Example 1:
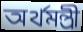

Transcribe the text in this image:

অর্থমন্ত্রী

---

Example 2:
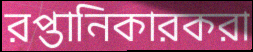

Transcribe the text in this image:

রপ্তানিকারকরা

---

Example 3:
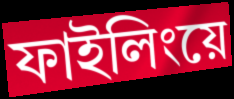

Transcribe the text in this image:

ফাইলিংয়ে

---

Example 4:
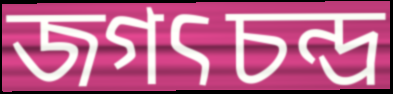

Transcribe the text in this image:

জগৎচন্দ্র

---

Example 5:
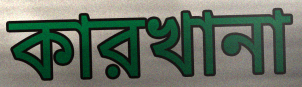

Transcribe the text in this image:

কারখানা